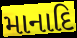
માનાદિ